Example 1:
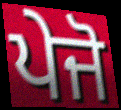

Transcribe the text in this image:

ਪੇਜੋ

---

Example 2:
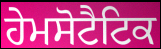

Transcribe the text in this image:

ਹੇਮਸੋਟੈਟਿਕ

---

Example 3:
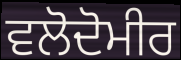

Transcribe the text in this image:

ਵਲੋਦੋਮੀਰ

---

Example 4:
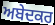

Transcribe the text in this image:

ਅਬੇਦਕਰ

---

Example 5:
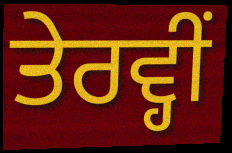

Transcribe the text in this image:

ਤੇਰਵ੍ਹੀਂ